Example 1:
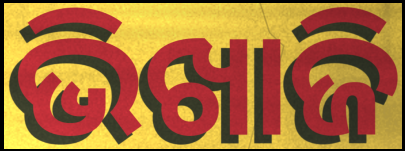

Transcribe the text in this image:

ଭିଖାଜି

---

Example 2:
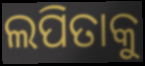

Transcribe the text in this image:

ଲପିତାକୁ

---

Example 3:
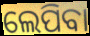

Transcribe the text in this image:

ଲେପିବା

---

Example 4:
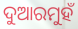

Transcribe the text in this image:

ଦୁଆରମୁହଁ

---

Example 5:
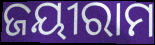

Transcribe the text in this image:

ଜୟୀରାମ